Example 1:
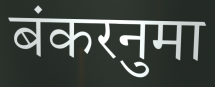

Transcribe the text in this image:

बंकरनुमा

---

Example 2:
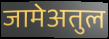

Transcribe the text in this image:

जामेअतुल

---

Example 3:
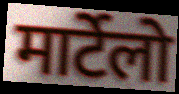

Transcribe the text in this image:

मार्टेलो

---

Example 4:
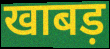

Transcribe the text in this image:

खाबड़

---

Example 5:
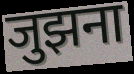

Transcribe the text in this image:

जुझना